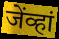
जेंव्हां